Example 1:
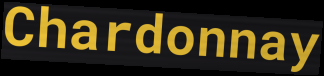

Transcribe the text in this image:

Chardonnay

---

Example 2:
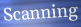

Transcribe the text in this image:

Scanning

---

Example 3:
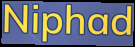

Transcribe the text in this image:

Niphad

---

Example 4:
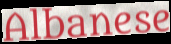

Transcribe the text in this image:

Albanese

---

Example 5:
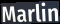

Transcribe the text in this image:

Marlin